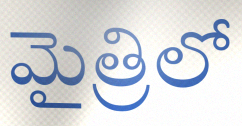
మైత్రిలో